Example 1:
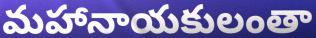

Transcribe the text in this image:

మహానాయకులంతా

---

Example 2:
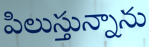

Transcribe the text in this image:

పిలుస్తున్నాను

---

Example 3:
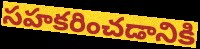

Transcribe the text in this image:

సహకరించడానికి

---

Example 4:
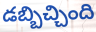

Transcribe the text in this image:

డబ్బిచ్చింది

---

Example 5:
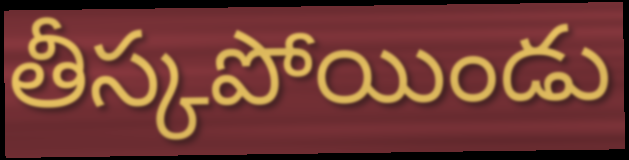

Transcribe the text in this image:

తీస్కపోయిండు